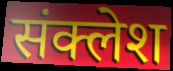
संक्लेश